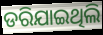
ଡରିଯାଇଥିଲି